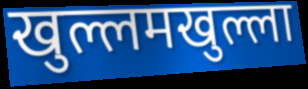
खुल्लमखुल्ला